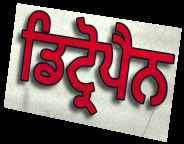
ਡਿਟ੍ਰੋਪੈਨ